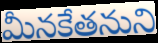
మీనకేతనుని